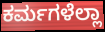
ಕರ್ಮಗಳೆಲ್ಲಾ